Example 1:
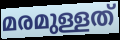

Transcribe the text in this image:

മരമുള്ളത്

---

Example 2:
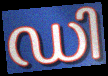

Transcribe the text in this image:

ഡി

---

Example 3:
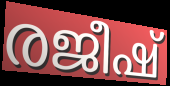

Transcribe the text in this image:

രജീഷ്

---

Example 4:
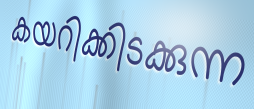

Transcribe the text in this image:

കയറിക്കിടക്കുന്ന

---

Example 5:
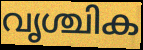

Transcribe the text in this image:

വൃശ്ചിക